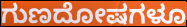
ಗುಣದೋಷಗಳೂ